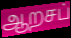
ஆறசப்